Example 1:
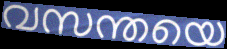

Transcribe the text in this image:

വസന്തയെ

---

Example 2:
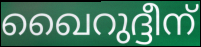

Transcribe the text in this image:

ഖൈറുദ്ദീന്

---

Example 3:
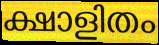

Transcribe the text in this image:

ക്ഷാളിതം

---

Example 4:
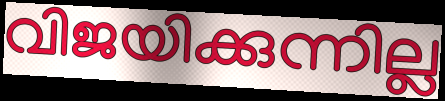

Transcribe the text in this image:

വിജയിക്കുന്നില്ല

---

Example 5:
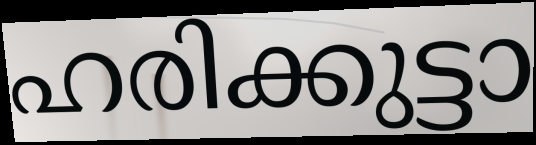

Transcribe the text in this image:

ഹരിക്കുട്ടാ